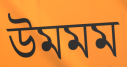
উমমম